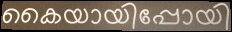
കൈയായിപ്പോയി